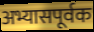
अभ्यासपूर्वक